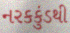
નરકકુંડથી